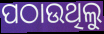
ପଠାଉଥିଲୁ